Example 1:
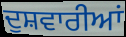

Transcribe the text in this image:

ਦੁਸ਼ਵਾਰੀਆਂ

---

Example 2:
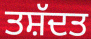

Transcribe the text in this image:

ਤਸ਼ੱਦਤ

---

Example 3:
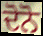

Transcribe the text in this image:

ਦੋਨੋ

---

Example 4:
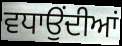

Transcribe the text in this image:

ਵਧਾਉਂਦੀਆਂ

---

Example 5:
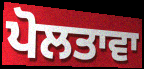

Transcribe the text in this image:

ਪੋਲਤਾਵਾ